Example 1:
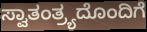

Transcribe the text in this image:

ಸ್ವಾತಂತ್ರ್ಯದೊಂದಿಗೆ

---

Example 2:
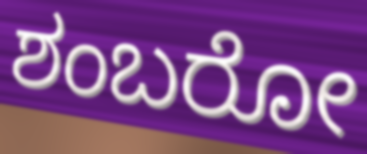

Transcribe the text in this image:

ಶಂಬರೋ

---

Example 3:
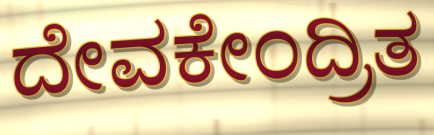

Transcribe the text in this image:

ದೇವಕೇಂದ್ರಿತ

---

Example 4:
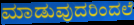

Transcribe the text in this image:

ಮಾಡುವುದರಿಂದಲೆ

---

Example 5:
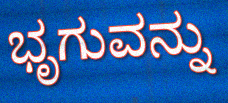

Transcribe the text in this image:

ಭೃಗುವನ್ನು